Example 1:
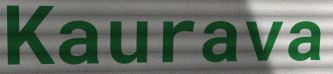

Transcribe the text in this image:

Kaurava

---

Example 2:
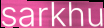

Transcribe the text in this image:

sarkhu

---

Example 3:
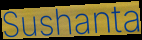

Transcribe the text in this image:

Sushanta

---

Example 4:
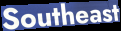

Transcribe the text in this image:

Southeast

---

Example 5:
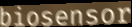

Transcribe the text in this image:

biosensor